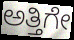
ಅತ್ತಿಗೇ